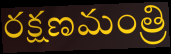
రక్షణమంత్రి